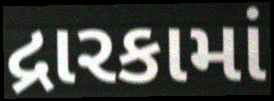
દ્રારકામાં